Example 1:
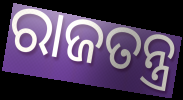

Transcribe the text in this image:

ରାଜତନ୍ତ୍ର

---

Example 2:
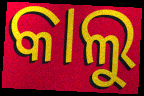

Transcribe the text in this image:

କାଲୁ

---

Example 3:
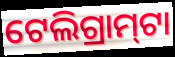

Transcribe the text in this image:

ଟେଲିଗ୍ରାମ୍‍ଟା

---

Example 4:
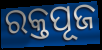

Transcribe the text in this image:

ରକ୍ତପୂଜ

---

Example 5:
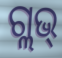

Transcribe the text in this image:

ଗ୍ଲଭ୍